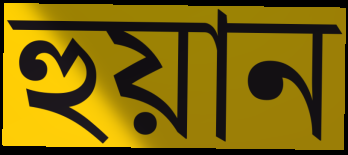
হুয়ান